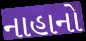
નાહાનો